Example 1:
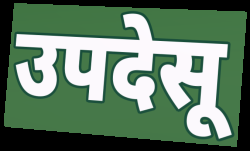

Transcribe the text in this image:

उपदेसू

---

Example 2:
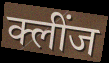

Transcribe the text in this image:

क्लींज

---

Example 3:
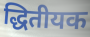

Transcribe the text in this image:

द्धितीयक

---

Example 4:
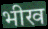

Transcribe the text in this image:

भीख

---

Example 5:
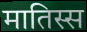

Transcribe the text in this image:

मातिस्स